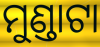
ମୁଣ୍ଡାଟା